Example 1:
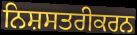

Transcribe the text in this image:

ਨਿਸ਼ਸਤਰੀਕਰਨ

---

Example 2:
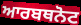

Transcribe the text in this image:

ਆਰਬਥਨੋਟ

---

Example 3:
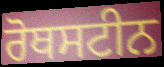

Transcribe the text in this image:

ਰੋਥਸਟੀਨ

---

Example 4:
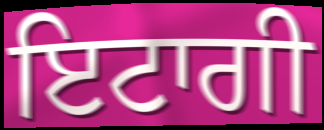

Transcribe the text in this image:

ਇਟਾਗੀ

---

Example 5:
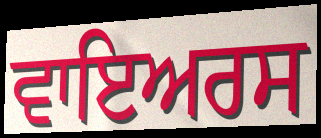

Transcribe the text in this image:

ਵਾਇਅਰਸ